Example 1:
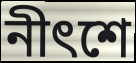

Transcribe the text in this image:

নীৎশে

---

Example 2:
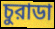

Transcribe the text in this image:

চুরাডা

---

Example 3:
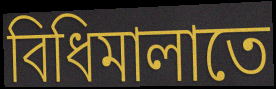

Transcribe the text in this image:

বিধিমালাতে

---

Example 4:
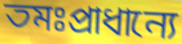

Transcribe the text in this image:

তমঃপ্রাধান্যে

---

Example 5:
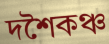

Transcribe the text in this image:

দশৈকঞ্চ